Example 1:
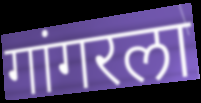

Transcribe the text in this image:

गांगरला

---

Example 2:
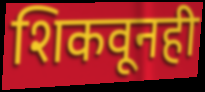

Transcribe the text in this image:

शिकवूनही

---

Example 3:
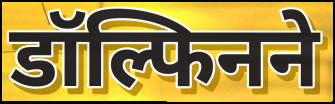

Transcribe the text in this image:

डॉल्फिनने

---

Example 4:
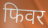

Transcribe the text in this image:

फिवर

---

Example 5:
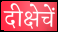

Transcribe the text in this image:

दीक्षेचें